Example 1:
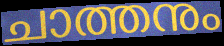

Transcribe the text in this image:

ചാത്തനും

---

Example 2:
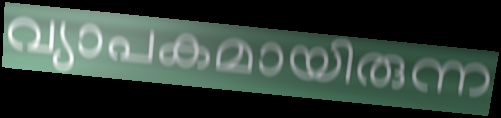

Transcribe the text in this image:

വ്യാപകമായിരുന്ന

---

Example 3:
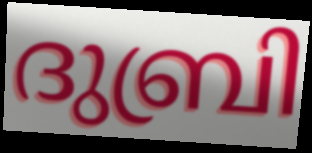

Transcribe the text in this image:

ദുബ്രി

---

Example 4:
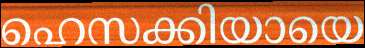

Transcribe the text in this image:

ഹെസക്കിയായെ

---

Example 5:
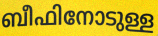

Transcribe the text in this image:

ബീഫിനോടുള്ള